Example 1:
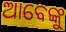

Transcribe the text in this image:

ଆବେଙ୍କୁ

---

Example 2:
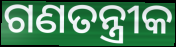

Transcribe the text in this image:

ଗଣତନ୍ତ୍ରୀକ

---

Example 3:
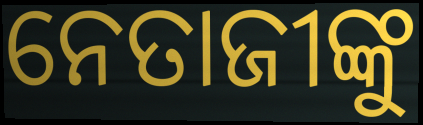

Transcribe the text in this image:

ନେତାଜୀଙ୍କୁ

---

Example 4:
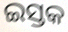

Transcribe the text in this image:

ଇସ୍ତକ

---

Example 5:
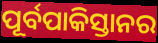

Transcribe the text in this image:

ପୂର୍ବପାକିସ୍ତାନର